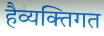
हैव्यक्तिगत